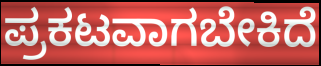
ಪ್ರಕಟವಾಗಬೇಕಿದೆ